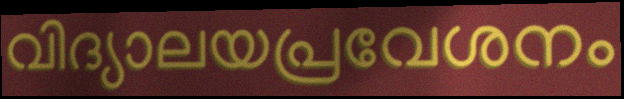
വിദ്യാലയപ്രവേശനം